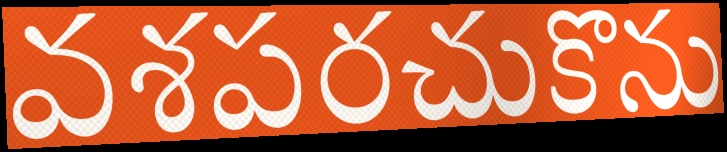
వశపరచుకొను